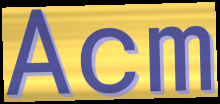
Acm